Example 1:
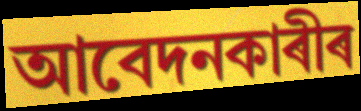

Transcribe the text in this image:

আবেদনকাৰীৰ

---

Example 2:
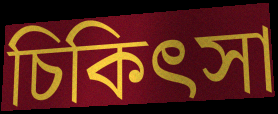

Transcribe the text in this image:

চিকিৎসা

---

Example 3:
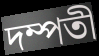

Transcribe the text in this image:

দম্পতী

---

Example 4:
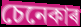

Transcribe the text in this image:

চেনেকাৰ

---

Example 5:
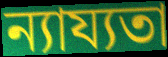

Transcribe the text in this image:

ন্যায্যতা